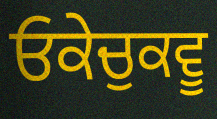
ਓਕੇਚੁਕਵੂ